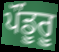
ਪੌਂਡੂਰੂ